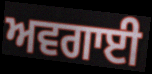
ਅਵਗਾਈ